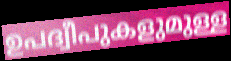
ഉപദ്വീപുകളുമുള്ള